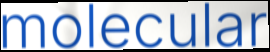
molecular